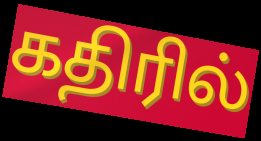
கதிரில்